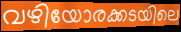
വഴിയോരക്കടയിലെ